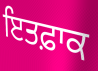
ਇਤਫ਼ਾਕ